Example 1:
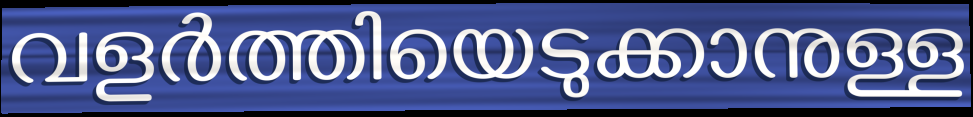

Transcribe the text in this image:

വളർത്തിയെടുക്കാനുള്ള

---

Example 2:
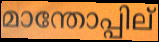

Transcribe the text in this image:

മാന്തോപ്പില്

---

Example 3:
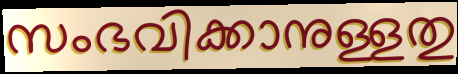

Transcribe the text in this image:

സംഭവിക്കാനുള്ളതു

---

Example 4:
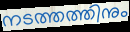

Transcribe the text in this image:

നടത്തത്തിനും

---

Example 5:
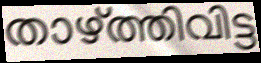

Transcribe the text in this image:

താഴ്ത്തിവിട്ട